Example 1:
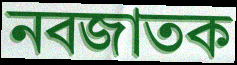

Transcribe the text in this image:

নবজাতক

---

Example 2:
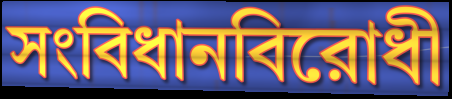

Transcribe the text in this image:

সংবিধানবিরোধী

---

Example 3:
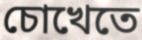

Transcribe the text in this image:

চোখেতে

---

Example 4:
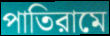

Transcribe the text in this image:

পাতিরামে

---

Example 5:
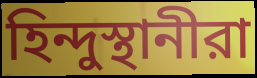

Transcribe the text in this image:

হিন্দুস্থানীরা